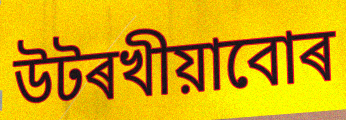
উটৰখীয়াবোৰ